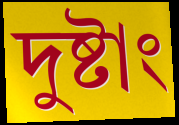
দুষ্টাং